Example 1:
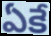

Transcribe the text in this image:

ఏకే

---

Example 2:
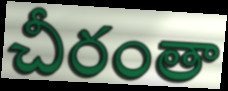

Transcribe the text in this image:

చీరంతా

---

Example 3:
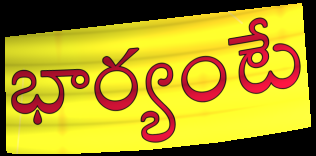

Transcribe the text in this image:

భార్యంటే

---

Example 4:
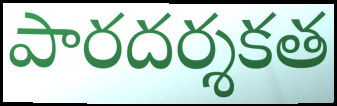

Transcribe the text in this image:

పారదర్శకత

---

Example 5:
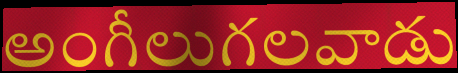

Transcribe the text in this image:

అంగీలుగలవాడు